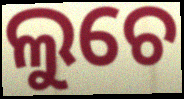
ଲୁଚେ